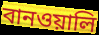
বানওয়ালি